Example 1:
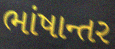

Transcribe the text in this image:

ભાંષાન્તર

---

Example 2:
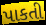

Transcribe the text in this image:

પાકતી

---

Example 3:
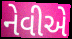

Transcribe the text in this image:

નેવીએ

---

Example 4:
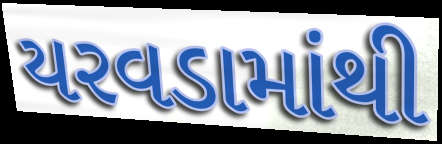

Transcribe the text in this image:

યરવડામાંથી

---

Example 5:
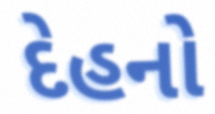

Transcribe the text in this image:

દેહનો